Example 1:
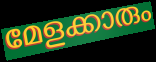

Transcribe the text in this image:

മേളക്കാരും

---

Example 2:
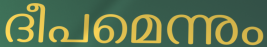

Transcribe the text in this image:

ദീപമെന്നും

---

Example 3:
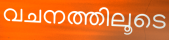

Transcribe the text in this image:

വചനത്തിലൂടെ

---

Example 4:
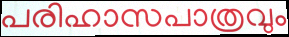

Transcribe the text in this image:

പരിഹാസപാത്രവും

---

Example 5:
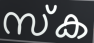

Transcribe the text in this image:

സ്ക